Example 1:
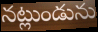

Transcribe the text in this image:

నట్లుండును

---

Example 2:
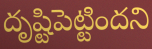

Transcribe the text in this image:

దృష్టిపెట్టిందని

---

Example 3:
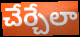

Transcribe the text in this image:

చేర్చేలా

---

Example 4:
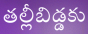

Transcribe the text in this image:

తల్లీబిడ్డకు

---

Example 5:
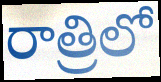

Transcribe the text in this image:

రాత్రిలో